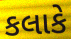
કલાકે